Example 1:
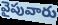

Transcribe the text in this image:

వైపువారు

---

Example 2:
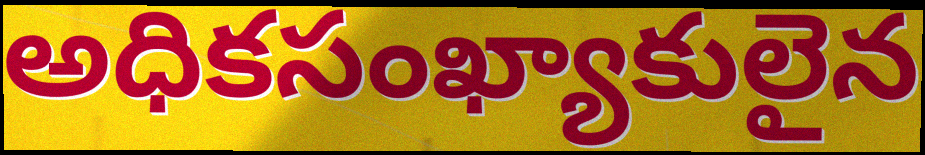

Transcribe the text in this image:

అధికసంఖ్యాకులైన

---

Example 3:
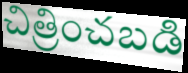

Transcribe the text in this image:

చిత్రించబడి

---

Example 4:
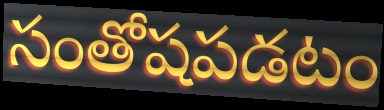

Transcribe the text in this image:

సంతోషపడటం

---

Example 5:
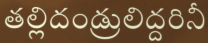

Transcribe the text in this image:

తల్లిదండ్రులిద్దరినీ